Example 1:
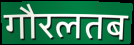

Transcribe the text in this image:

गौरलतब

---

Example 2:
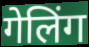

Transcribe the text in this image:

गेलिंग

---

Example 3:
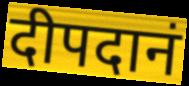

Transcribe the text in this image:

दीपदानं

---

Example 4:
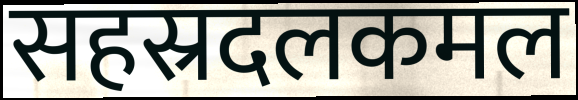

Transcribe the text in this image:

सहस्रदलकमल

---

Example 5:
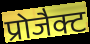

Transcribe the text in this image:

प्रोजैक्ट